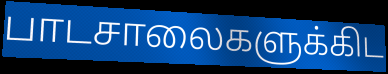
பாடசாலைகளுக்கிட